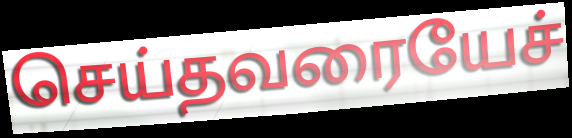
செய்தவரையேச்